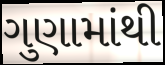
ગુણામાંથી